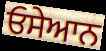
ਓਸੇਆਨ